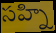
సహ్ని